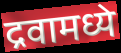
द्रवामध्ये